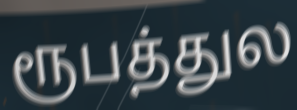
ரூபத்துல